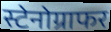
स्टेनोग्राफर